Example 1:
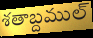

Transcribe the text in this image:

శతాబ్దముల్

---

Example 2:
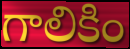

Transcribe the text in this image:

గాలికిం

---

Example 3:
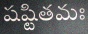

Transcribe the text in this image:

షష్టితమః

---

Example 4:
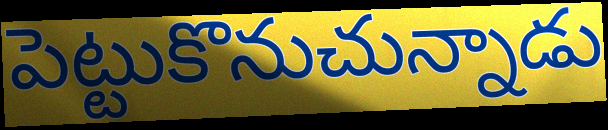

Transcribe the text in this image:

పెట్టుకొనుచున్నాడు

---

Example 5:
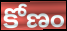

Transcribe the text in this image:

కోణం